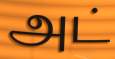
அட்